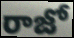
రాజో